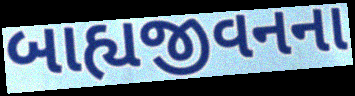
બાહ્યજીવનના